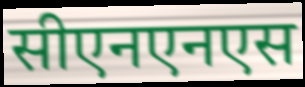
सीएनएनएस